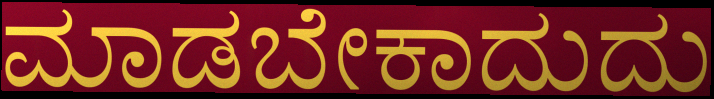
ಮಾಡಬೇಕಾದುದು